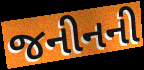
જનીનની